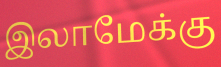
இலாமேக்கு